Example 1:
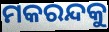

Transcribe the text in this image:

ମକରନ୍ଦକୁ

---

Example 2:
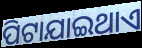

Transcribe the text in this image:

ପିଟାଯାଇଥାଏ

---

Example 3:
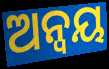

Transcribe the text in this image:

ଅନ୍ୱୟ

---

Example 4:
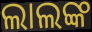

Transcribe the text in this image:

ଲାଲଙ୍କ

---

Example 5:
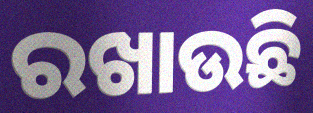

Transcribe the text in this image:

ରଖାଉଛି